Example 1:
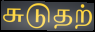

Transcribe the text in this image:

சுடுதற்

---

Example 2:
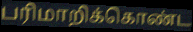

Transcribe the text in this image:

பரிமாறிக்கொண்ட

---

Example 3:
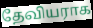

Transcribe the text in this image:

தேவியராக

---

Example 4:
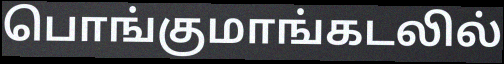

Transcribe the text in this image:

பொங்குமாங்கடலில்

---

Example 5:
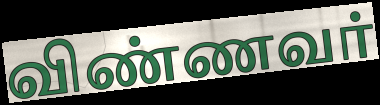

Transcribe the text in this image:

விண்ணவர்